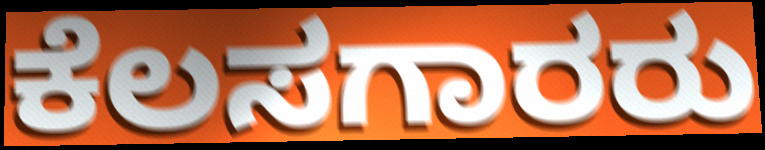
ಕೆಲಸಗಾರರು